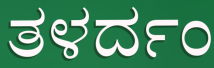
ತಳರ್ದಂ